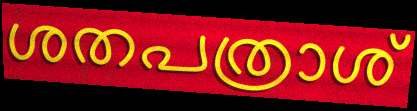
ശതപത്രാശ്